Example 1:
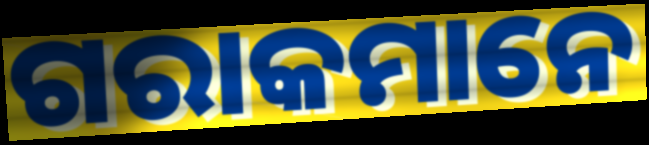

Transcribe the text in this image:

ଗରାକମାନେ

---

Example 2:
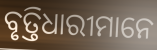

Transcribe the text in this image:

ବୃତ୍ତିଧାରୀମାନେ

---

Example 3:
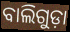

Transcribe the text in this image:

ବାଲିଗୁଡ଼ା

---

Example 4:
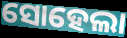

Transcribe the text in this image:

ସୋହେଲା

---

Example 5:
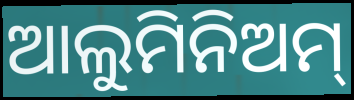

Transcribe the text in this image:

ଆଲୁମିନିଅମ୍